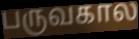
பருவகால